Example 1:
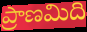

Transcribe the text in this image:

ప్రాణమిది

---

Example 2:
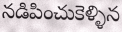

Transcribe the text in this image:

నడిపించుకెళ్ళిన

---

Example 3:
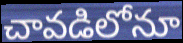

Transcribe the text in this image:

చావడిలోనూ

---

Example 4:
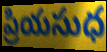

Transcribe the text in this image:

ప్రియసుధ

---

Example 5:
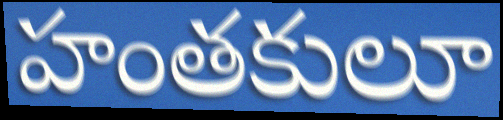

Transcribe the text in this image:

హంతకులూ